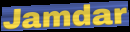
Jamdar